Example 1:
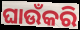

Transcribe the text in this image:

ଘାଉଁକରି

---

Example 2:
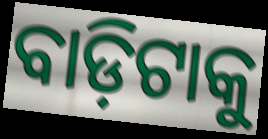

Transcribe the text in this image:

ବାଡ଼ିଟାକୁ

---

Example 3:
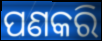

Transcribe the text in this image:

ପଣକରି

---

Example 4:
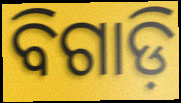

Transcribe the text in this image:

ବିଗାଡ଼ି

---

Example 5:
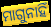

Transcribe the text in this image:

ମାଗୁନାହିଁ